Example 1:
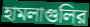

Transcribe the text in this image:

হামলাগুলির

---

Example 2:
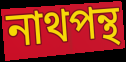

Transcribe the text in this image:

নাথপন্থ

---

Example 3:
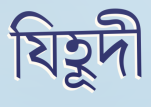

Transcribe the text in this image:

যিহূদী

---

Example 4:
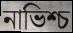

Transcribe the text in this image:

নাভিশ্চ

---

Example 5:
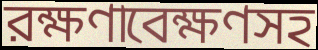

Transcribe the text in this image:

রক্ষণাবেক্ষণসহ